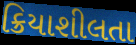
ક્રિયાશીલતા